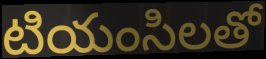
టియంసిలతో